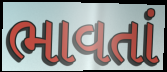
ભાવતાં